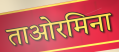
ताओरमिना